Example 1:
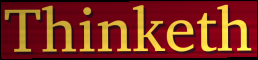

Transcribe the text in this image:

Thinketh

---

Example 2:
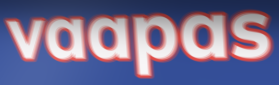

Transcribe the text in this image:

vaapas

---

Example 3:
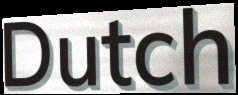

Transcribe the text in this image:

Dutch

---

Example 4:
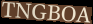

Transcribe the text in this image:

TNGBOA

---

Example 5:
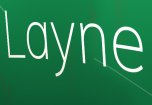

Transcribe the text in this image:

Layne